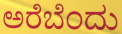
ಅರೆಬೆಂದು